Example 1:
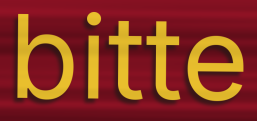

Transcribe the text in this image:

bitte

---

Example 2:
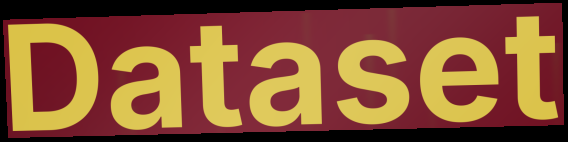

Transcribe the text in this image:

Dataset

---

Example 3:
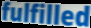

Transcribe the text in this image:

fulfilled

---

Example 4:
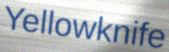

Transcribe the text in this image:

Yellowknife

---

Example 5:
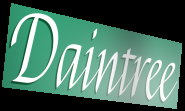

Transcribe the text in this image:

Daintree